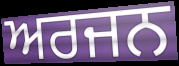
ਅਰਜਨ